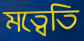
মত্বেতি